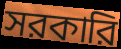
সরকারি